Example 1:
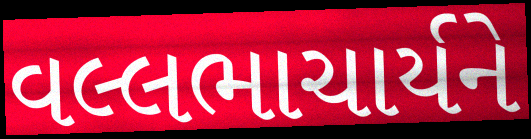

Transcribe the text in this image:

વલ્લભાચાર્યને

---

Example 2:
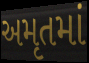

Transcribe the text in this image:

અમૃતમાં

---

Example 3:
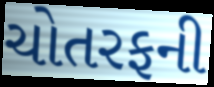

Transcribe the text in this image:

ચોતરફની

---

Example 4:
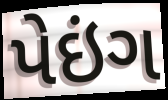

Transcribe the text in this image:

પેઇંગ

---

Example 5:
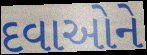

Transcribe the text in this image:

દવાઓને